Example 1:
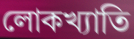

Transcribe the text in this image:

লোকখ্যাতি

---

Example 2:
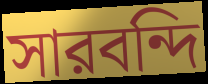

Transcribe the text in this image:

সারবন্দি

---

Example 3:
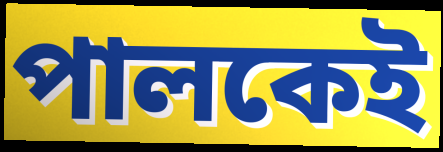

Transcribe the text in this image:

পালকেই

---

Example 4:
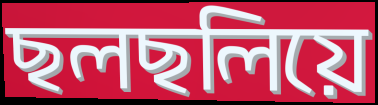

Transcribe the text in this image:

ছলছলিয়ে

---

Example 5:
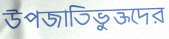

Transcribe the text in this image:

উপজাতিভুক্তদের